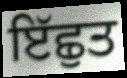
ਇੱਛੁਤ